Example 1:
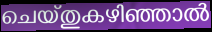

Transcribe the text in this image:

ചെയ്തുകഴിഞ്ഞാൽ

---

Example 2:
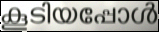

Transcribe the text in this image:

കൂടിയപ്പോൾ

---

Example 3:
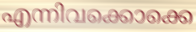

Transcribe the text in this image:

എന്നിവക്കൊക്കെ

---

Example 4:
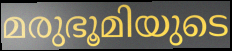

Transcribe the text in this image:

മരുഭൂമിയുടെ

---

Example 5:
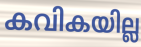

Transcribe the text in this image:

കവികയില്ല